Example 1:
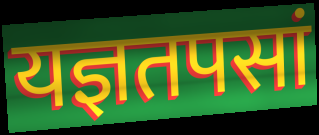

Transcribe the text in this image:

यज्ञतपसां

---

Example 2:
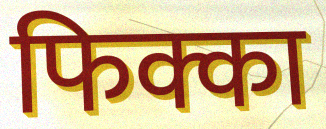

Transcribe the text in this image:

फिक्का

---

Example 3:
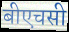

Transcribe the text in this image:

बीएचसी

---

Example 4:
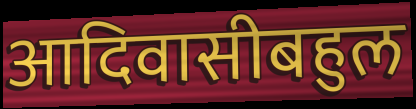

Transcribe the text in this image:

आदिवासीबहुल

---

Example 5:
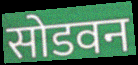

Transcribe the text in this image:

सोडवन